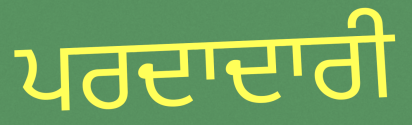
ਪਰਦਾਦਾਰੀ